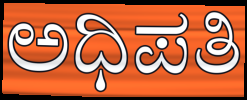
ಅಧಿಪತಿ